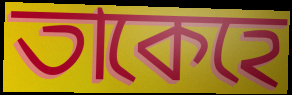
তাকেহে